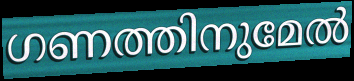
ഗണത്തിനുമേൽ